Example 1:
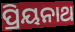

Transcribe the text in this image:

ପ୍ରିୟନାଥ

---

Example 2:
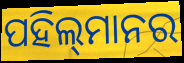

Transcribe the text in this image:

ପହିଲ୍‌ମାନର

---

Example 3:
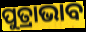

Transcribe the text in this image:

ପୁତ୍ରାଭାବ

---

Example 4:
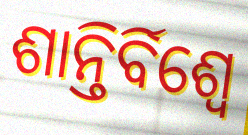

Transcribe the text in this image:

ଶାନ୍ତିର୍ବିଶ୍ୱେ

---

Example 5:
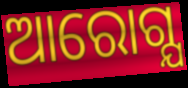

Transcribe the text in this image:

ଆରୋଗ୍ଯ